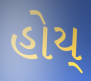
હોય્